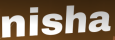
nisha